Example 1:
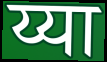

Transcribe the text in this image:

य्या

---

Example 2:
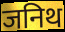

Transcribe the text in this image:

जनिथ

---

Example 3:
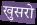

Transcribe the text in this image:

खुसरो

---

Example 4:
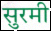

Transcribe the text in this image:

सुरमी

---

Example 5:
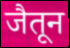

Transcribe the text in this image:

जैतून